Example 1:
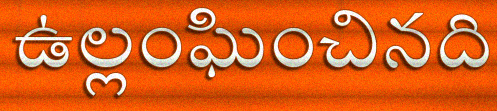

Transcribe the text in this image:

ఉల్లంఘించినది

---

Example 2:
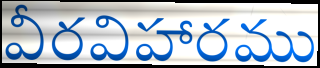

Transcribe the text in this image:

వీరవిహారము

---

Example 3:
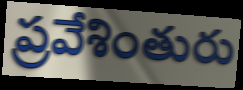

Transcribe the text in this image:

ప్రవేశింతురు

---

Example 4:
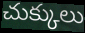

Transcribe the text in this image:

చుక్కులు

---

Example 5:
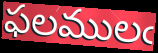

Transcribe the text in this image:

ఫలములఁ